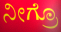
ನೀಗ್ರೊ